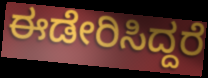
ಈಡೇರಿಸಿದ್ದರೆ